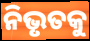
ନିଭୃତକୁ